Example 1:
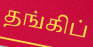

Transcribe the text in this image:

தங்கிப்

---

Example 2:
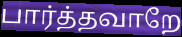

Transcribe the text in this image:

பார்த்தவாறே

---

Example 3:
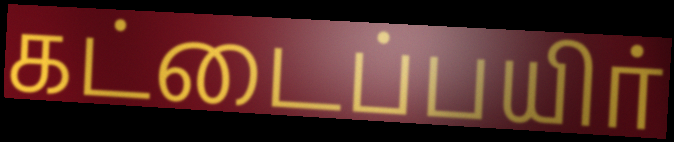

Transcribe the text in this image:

கட்டைப்பயிர்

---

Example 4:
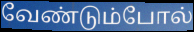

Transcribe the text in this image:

வேண்டும்போல்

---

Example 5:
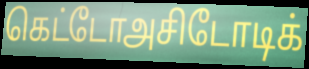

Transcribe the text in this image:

கெட்டோஅசிடோடிக்